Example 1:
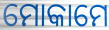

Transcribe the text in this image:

ମୋକାମେ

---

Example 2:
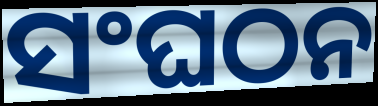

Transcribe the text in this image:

ସଂଘଠନ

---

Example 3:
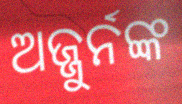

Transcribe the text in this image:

ଅଜ୍ଜୁର୍ନଙ୍କ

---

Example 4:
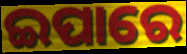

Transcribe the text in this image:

ଇପାରେ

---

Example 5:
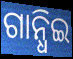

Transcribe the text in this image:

ଗାନ୍ଧିଇ